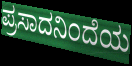
ಪ್ರಸಾದನಿಂದೆಯ